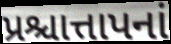
પ્રશ્ચાત્તાપનાં